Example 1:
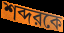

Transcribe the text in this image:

শব্দরকে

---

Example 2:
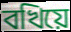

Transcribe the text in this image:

বখিয়ে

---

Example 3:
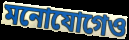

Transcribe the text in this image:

মনোযোগেও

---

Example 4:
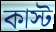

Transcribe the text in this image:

কাস্ট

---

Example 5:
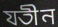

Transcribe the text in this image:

যতীন